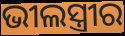
ଭୀଲସ୍ତ୍ରୀର